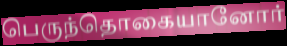
பெருந்தொகையானோர்